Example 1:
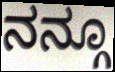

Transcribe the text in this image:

ನನ್ಗೂ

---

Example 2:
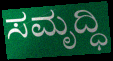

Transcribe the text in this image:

ಸಮೃದ್ಧಿ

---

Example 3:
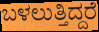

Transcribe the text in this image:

ಬಳಲುತ್ತಿದ್ದರೆ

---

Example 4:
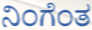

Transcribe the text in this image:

ನಿಂಗೆಂತ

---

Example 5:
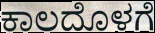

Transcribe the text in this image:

ಕಾಲದೊಳಗೆ